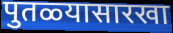
पुतळ्यासारखा